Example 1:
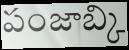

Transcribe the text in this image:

పంజాబ్కి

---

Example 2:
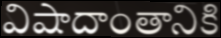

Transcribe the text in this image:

విషాదాంతానికి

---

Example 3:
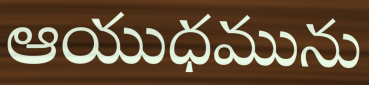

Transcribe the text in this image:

ఆయుధమును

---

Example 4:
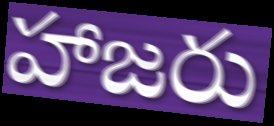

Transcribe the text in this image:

హాజరు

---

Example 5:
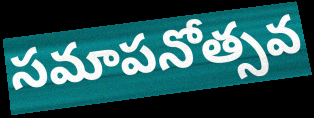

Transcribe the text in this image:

సమాపనోత్సవ